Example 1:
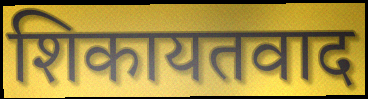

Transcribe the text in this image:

शिकायतवाद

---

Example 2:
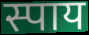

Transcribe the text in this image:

स्पाय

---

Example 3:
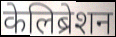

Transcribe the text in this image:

केलिब्रेशन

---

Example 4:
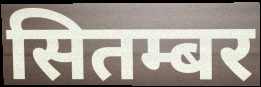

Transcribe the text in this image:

सितम्बर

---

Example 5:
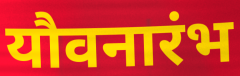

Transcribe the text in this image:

यौवनारंभ